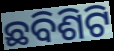
ଛବିଶିଟି